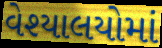
વેશ્યાલયોમાં